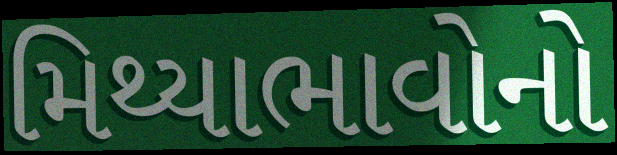
મિથ્યાભાવોનો